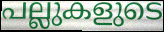
പല്ലുകളുടെ